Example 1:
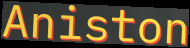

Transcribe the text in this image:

Aniston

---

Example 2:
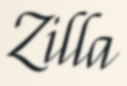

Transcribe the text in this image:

Zilla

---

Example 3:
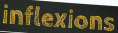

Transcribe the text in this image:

inflexions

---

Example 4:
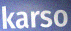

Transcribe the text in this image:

karso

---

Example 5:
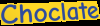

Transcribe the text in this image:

Choclate